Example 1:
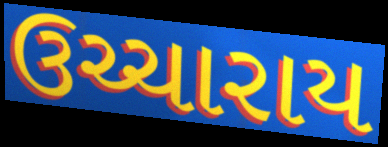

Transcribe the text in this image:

ઉચ્ચારાય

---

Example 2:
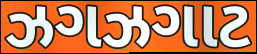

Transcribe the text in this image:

ઝગઝગાટ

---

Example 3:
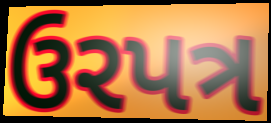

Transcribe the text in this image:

ઉરપત્ર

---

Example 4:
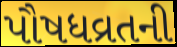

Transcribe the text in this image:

પૌષધવ્રતની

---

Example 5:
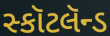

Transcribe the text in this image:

સ્કૉટલૅન્ડ